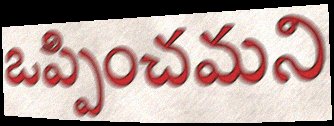
ఒప్పించమని